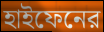
হাইফেনের